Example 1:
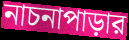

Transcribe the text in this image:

নাচনাপাড়ার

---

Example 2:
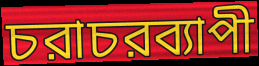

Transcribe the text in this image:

চরাচরব্যাপী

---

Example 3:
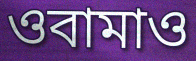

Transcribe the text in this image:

ওবামাও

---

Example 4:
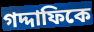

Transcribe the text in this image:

গদ্দাফিকে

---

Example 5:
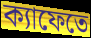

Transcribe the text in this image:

ক্যাফেতে